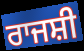
ਰਾਜਸ਼ੀ